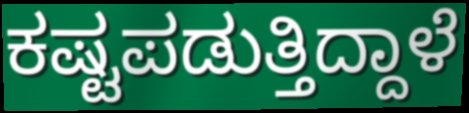
ಕಷ್ಟಪಡುತ್ತಿದ್ದಾಳೆ